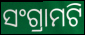
ସଂଗ୍ରାମଟି